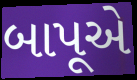
બાપૂએ